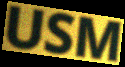
USM